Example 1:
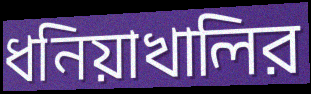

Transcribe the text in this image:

ধনিয়াখালির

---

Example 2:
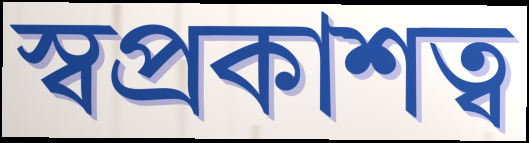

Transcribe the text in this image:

স্বপ্রকাশত্ব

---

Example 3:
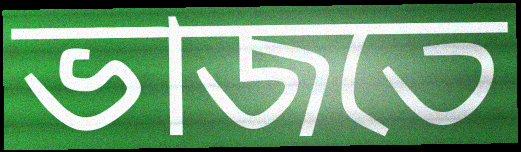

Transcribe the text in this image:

ভাজতে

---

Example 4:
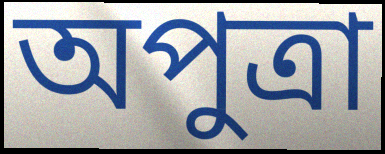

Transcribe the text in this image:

অপুত্রা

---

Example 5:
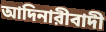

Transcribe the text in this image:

আদিনারীবাদী